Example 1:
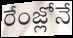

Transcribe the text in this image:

రేంజ్లోనే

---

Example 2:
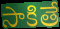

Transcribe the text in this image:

సాకితే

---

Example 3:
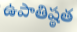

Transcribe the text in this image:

ఉపాతిష్ఠత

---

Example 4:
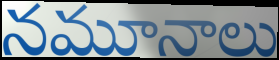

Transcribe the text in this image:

నమూనాలు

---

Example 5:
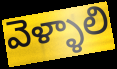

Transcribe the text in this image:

వెళ్ళాలి